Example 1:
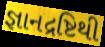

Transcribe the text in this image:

જ્ઞાનદ્રષ્ટિથી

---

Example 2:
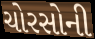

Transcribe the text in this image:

ચોરસોની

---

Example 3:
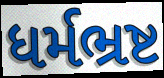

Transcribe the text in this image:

ધર્મભ્રષ્ટ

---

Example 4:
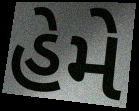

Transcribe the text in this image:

હેમે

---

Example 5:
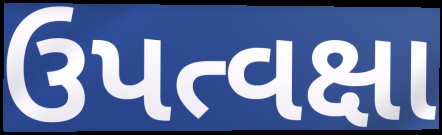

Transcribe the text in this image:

ઉપત્વક્ષા